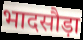
भादसौड़ा